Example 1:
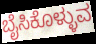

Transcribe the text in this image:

ಬೈಸಿಕೊಳ್ಳುವ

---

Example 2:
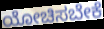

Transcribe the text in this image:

ಯೋಚಿಸಬೇಕೆ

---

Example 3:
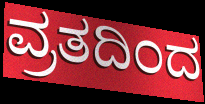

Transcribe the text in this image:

ವ್ರತದಿಂದ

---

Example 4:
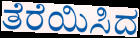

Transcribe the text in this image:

ತೆರೆಯಿಸಿದ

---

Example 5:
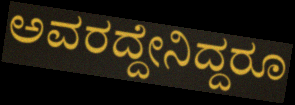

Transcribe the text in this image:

ಅವರದ್ದೇನಿದ್ದರೂ